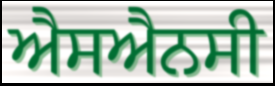
ਐਸਐਨਸੀ